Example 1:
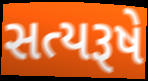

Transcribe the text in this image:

સત્યરૂષે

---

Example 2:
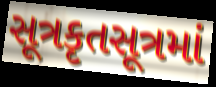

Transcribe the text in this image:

સૂત્રકૃતસૂત્રમાં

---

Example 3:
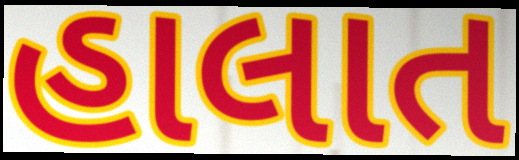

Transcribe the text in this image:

હાલાત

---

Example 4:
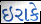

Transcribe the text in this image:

ઇરાકે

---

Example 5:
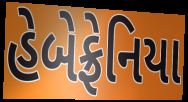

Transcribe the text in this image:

હેબેફ્રેનિયા